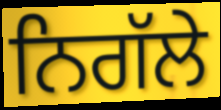
ਨਿਗੱਲੇ